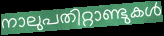
നാലുപതിറ്റാണ്ടുകൾ